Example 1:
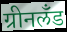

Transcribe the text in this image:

ग्रीनलँड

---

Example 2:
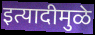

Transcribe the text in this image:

इत्यादीमुळे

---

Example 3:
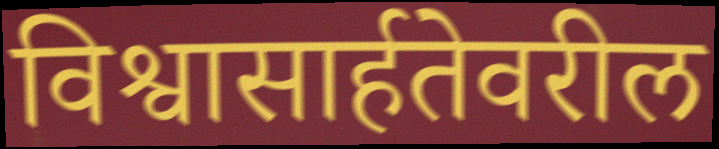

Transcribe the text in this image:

विश्वासार्हतेवरील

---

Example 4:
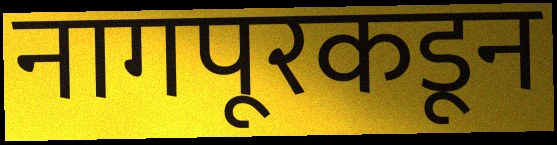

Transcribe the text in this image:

नागपूरकडून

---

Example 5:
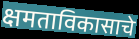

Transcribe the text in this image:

क्षमताविकासाचे